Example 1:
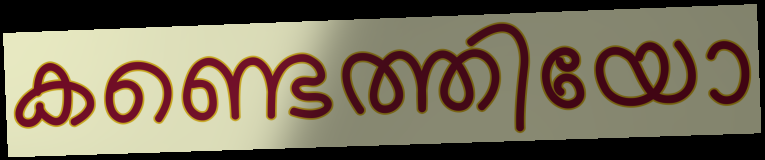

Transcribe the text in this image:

കണ്ടെത്തിയോ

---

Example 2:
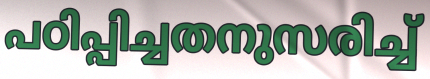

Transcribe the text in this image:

പഠിപ്പിച്ചതനുസരിച്ച്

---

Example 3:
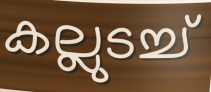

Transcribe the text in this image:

കല്ലുടച്ച്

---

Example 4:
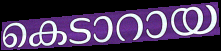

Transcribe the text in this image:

കെടാറായ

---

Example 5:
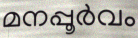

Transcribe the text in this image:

മനപ്പൂർവം